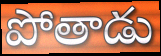
పోతాడు